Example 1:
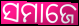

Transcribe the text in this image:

ସମାଜେ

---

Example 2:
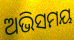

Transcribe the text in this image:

ଅଭିସମୟ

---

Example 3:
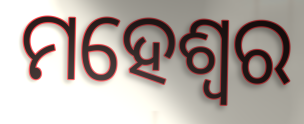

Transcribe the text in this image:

ମହେଶ୍ଵର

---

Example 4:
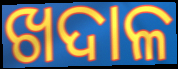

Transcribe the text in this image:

ଖଦାଳ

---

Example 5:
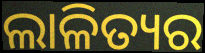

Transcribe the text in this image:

ଲାଳିତ୍ୟର